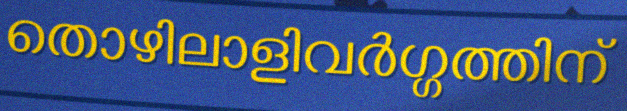
തൊഴിലാളിവർഗ്ഗത്തിന്